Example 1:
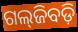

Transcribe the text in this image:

ଗଲ୍‌ଜିବଡ଼ି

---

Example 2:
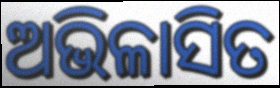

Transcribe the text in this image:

ଅଭିଳାସିତ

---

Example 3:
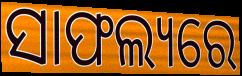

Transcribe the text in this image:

ସାଫଲ୍ୟରେ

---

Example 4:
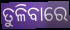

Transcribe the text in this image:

ତୁଳିବାରେ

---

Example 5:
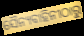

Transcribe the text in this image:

ସୈନ୍ୟବାହିନୀଠାରୁ